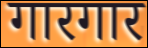
गारगार